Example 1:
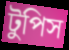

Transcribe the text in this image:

টুপিস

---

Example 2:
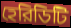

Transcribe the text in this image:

হেরিডিটি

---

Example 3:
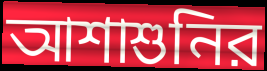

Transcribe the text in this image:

আশাশুনির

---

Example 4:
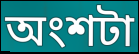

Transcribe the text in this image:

অংশটা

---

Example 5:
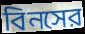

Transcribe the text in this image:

বিনসের